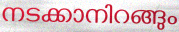
നടക്കാനിറങ്ങും